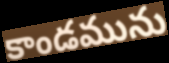
కాండమును